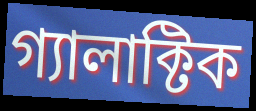
গ্যালাক্টিক